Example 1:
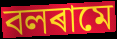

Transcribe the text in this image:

বলৰামে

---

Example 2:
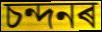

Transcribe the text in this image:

চন্দনৰ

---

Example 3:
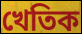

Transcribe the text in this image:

খেতিক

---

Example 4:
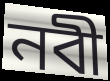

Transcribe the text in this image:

নবী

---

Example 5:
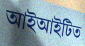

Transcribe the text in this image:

আইআইটিত